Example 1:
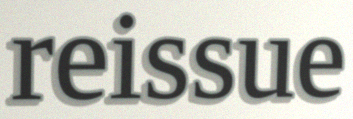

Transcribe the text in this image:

reissue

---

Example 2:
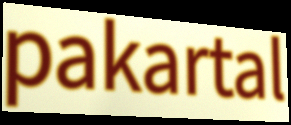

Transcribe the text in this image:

pakartal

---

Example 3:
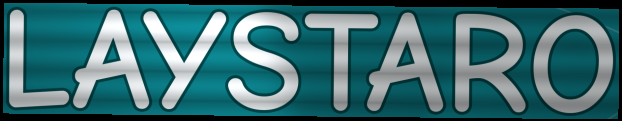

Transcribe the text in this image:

LAYSTARO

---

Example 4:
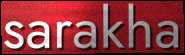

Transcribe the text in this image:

sarakha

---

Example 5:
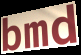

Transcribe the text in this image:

bmd